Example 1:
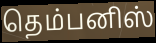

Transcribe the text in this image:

தெம்பனிஸ்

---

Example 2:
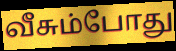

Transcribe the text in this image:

வீசும்போது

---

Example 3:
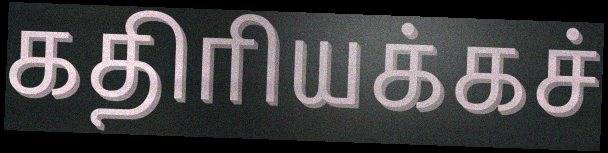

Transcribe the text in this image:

கதிரியக்கச்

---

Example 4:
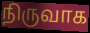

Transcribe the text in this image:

நிருவாக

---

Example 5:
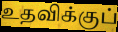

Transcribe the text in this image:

உதவிக்குப்